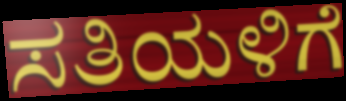
ಸತಿಯಳಿಗೆ